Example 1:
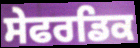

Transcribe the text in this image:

ਸੇਫਰਡਿਕ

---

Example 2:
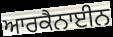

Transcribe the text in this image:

ਆਰਕੈਨਾਈਨ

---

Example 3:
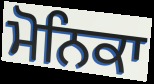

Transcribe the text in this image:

ਮੋਨਿਕਾ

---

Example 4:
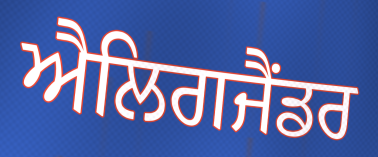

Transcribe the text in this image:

ਐਲਿਗਜੈਂਡਰ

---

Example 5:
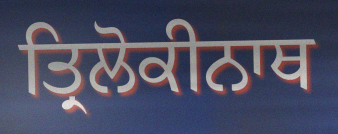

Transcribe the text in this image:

ਤ੍ਰਿਲੋਕੀਨਾਥ